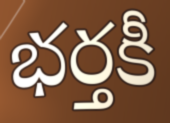
భర్తకీ